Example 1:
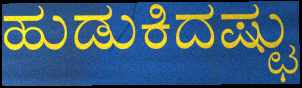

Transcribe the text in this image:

ಹುಡುಕಿದಷ್ಟು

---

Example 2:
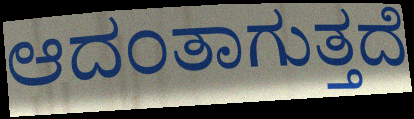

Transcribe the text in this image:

ಆದಂತಾಗುತ್ತದೆ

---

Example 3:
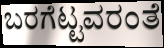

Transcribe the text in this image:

ಬರಗೆಟ್ಟವರಂತೆ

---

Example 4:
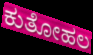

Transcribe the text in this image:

ಕುತೋಹಲ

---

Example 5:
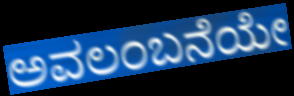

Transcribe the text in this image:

ಅವಲಂಬನೆಯೇ